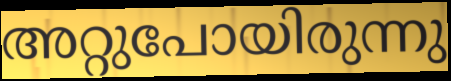
അറ്റുപോയിരുന്നു